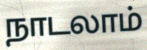
நாடலாம்